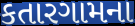
કતારગામના